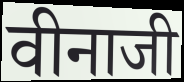
वीनाजी